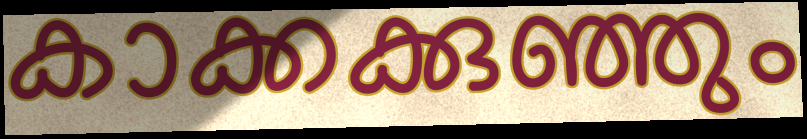
കാക്കക്കുഞ്ഞും